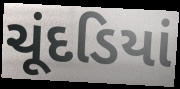
ચૂંદડિયાં